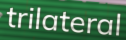
trilateral